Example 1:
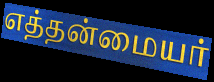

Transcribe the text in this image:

எத்தன்மையர்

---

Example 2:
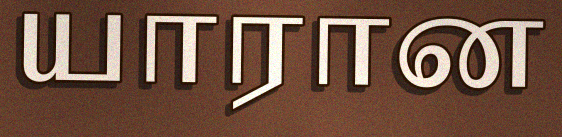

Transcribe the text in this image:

யாரான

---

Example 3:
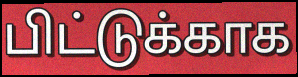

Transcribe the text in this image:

பிட்டுக்காக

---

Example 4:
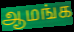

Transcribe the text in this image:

ஆமங்க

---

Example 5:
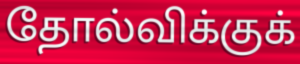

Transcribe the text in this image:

தோல்விக்குக்